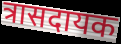
त्रासदायक